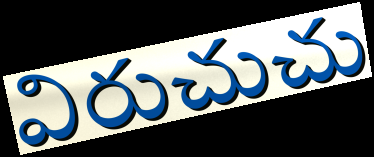
విరుచుచు